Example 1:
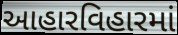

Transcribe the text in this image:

આહારવિહારમાં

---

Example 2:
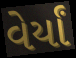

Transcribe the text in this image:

વેર્યાં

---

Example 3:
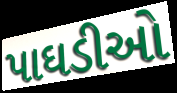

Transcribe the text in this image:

પાઘડીઓ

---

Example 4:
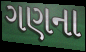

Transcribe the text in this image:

ગણના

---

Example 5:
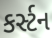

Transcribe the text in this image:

કર્સ્ટન